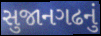
સુજાનગઢનું